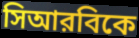
সিআরবিকে